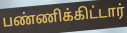
பண்ணிக்கிட்டார்